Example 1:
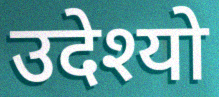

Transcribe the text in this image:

उदेश्यो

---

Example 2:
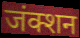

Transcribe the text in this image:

जंक्शन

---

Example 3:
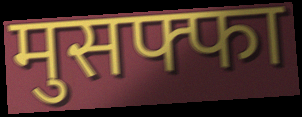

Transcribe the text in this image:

मुसफ्फा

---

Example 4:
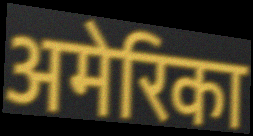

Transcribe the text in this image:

अमेरिका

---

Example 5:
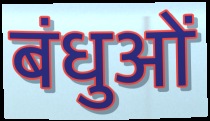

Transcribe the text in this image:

बंधुओं